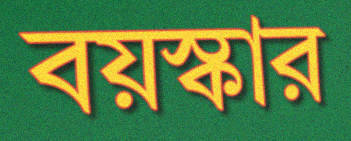
বয়স্কার